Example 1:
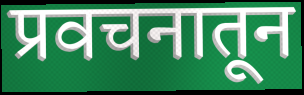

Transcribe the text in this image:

प्रवचनातून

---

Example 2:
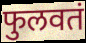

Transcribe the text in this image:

फुलवतं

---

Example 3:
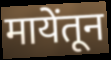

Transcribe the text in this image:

मायेंतून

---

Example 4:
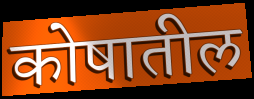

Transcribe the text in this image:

कोषातील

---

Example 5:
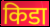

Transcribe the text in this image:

किडा